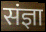
संज्ञा